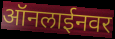
ऑनलाईनवर